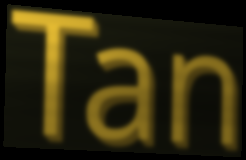
Tan